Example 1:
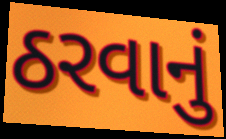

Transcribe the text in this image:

ઠરવાનું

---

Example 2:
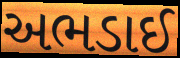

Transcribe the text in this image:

અભડાઈ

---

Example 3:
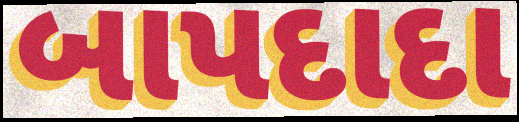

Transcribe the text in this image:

બાપદાદા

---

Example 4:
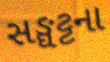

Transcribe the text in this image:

સઙ્ઘટ્ટના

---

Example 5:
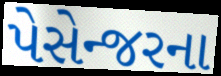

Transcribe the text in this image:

પેસેન્જરના